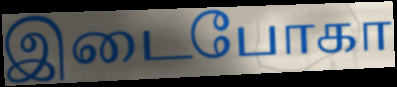
இடைபோகா